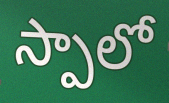
స్పాలో